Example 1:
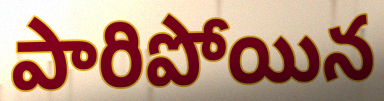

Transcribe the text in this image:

పారిపోయిన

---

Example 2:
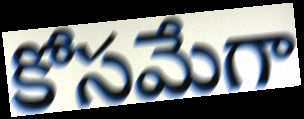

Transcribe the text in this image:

కోసమేగా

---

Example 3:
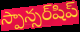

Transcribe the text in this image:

స్పాన్సర్‌షిప్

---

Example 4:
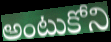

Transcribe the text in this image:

అంటుకోని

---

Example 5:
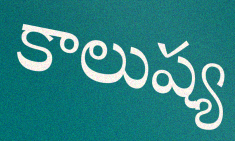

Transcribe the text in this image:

కాలుష్య